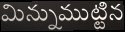
మిన్నుముట్టిన